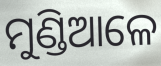
ମୁଣ୍ଡିଆଳେ